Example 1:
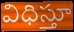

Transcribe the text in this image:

విధిస్తూ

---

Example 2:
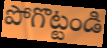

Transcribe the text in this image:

పోగొట్టండి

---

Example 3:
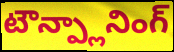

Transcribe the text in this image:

టౌన్ప్లానింగ్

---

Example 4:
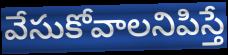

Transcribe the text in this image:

వేసుకోవాలనిపిస్తే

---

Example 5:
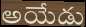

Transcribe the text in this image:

అయేడు